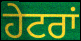
ਹੇਟਰਾਂ